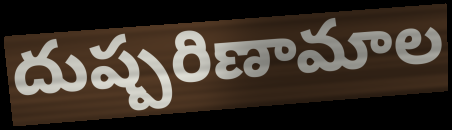
దుష్పరిణామాల